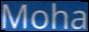
Moha